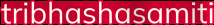
tribhashasamiti